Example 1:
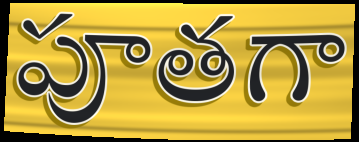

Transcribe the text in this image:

పూతగా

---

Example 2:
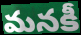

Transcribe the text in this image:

మనకీ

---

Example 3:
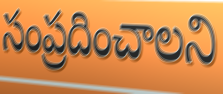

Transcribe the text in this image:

సంప్రదించాలని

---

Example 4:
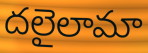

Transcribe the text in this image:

దలైలామా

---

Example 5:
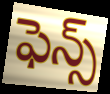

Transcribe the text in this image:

ఫెన్స్